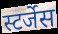
स्टर्जेस